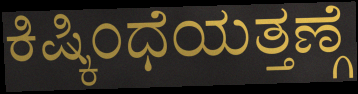
ಕಿಷ್ಕಿಂಧೆಯತ್ತಣ್ಗೆ